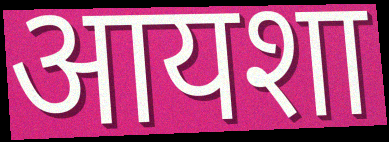
आयशा